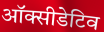
ऑक्सीडेटिव